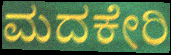
ಮದಕೇರಿ